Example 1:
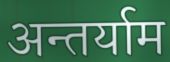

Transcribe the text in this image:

अन्तर्याम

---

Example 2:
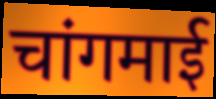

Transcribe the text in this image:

चांगमाई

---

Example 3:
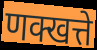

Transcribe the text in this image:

णक्खत्ते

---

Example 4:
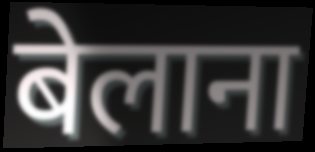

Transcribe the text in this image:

बेलाना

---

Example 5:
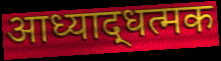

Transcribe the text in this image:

आध्याद्धत्मक